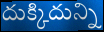
దుక్కిదున్ని